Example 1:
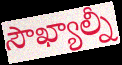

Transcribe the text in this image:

సౌఖ్యాల్నీ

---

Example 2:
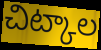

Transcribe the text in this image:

చిట్కాల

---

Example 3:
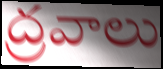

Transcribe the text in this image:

ద్రవాలు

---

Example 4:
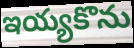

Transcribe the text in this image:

ఇయ్యకొను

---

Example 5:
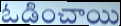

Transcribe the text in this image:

ఓడించాయి